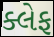
ક્લેફ